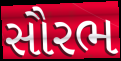
સૌરભ